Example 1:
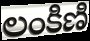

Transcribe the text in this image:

లంకిణి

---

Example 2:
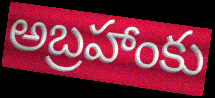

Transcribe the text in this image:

అబ్రహాంకు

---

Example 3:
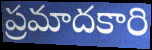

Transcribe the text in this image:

ప్రమాదకారి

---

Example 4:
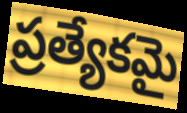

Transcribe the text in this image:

ప్రత్యేకమై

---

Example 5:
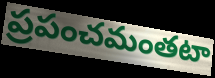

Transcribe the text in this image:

ప్రపంచమంతటా